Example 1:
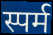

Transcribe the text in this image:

स्पर्म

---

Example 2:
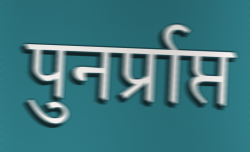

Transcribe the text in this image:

पुनर्प्राप्त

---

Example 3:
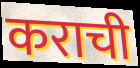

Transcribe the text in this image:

कराची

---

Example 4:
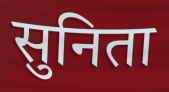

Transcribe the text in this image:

सुनिता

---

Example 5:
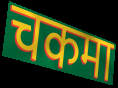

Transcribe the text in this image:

चकमा